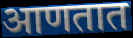
आणतात